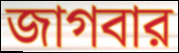
জাগবার